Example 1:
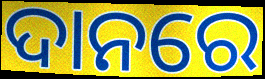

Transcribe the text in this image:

ଦାନରେ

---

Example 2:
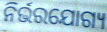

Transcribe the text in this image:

ନିର୍ଭରଯୋଗ୍ୟ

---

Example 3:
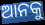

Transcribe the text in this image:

ଆନକୁ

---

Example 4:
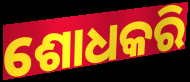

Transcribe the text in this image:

ଶୋଧକରି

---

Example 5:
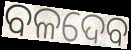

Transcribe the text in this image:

ବଳଦେବ